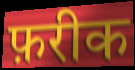
फ़रीक